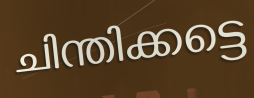
ചിന്തിക്കട്ടെ